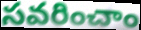
సవరించాం